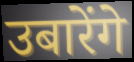
उबारेंगे